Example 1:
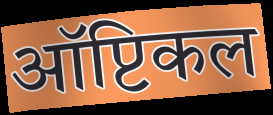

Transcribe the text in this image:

ऑप्टिकल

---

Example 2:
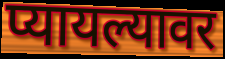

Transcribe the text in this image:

प्यायल्यावर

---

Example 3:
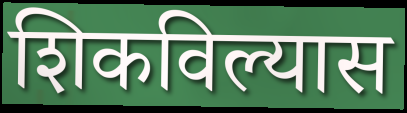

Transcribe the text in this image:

शिकविल्यास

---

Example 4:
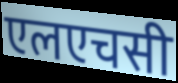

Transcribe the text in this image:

एलएचसी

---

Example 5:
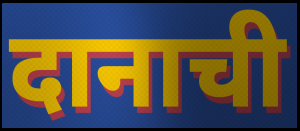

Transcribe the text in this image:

दानाची